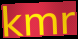
kmr